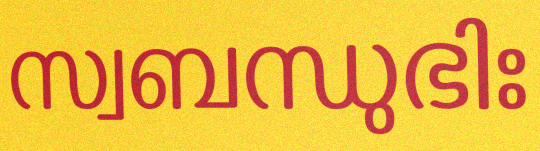
സ്വബന്ധുഭിഃ